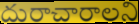
దురాచారాలని